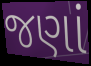
જણાં